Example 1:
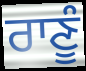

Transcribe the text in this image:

ਰਾਣੂੰ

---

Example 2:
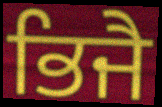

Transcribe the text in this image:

ਭਿਜੈ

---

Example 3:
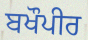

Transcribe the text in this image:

ਬਖੌਪੀਰ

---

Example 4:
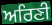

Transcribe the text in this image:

ਅਰਿਣੀ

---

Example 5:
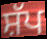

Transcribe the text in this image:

ਸ਼ੱਪ